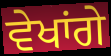
ਵੇਖਾਂਗੇ